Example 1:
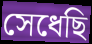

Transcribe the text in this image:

সেধেছি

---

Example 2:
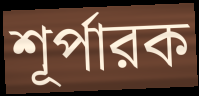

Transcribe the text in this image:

শূর্পারক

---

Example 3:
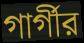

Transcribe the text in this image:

গার্গীর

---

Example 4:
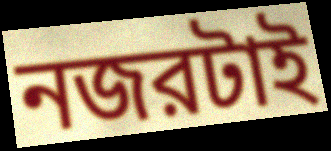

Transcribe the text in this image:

নজরটাই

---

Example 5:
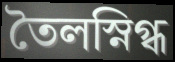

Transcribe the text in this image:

তৈলস্নিগ্ধ